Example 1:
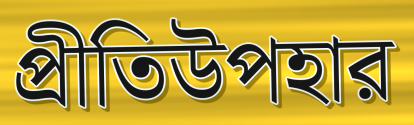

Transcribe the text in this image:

প্রীতিউপহার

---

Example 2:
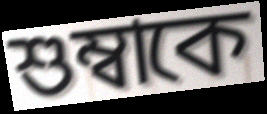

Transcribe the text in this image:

শুম্বাকে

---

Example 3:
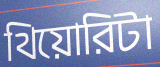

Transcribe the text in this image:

থিয়োরিটা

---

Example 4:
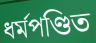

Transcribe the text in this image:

ধর্মপণ্ডিত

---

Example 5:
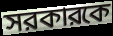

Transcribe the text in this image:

সরকারকে